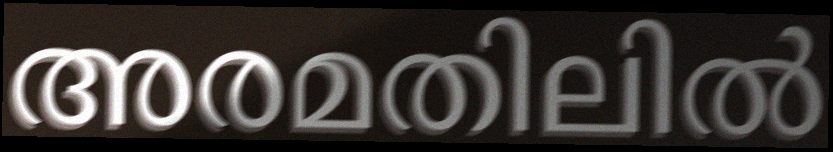
അരമതിലിൽ